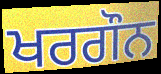
ਖਰਗੌਨ